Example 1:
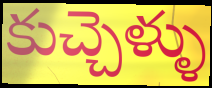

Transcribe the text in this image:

కుచ్చెళ్ళు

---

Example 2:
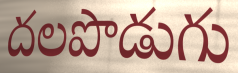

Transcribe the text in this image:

దలపొడుగు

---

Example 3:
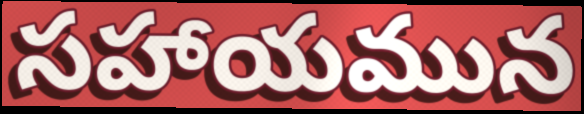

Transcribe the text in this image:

సహాయమున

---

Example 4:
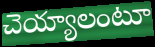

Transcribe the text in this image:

చెయ్యాలంటూ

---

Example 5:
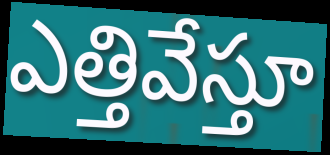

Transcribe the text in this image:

ఎత్తివేస్తూ